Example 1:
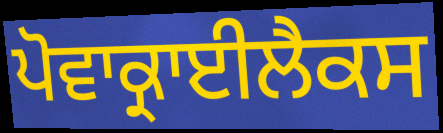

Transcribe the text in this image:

ਪੋਵਾਕ੍ਰਾਈਲੈਕਸ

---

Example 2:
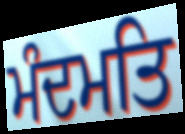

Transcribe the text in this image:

ਮੰਦਮਤਿ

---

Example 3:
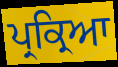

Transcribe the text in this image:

ਪ੍ਰਕ੍ਰਿਆ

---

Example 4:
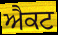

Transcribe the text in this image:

ਐਕਟ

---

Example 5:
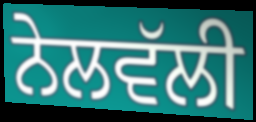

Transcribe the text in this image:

ਨੇਲਵੱਲੀ